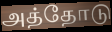
அத்தோடு